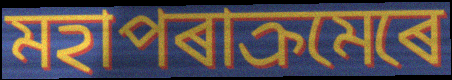
মহাপৰাক্ৰমেৰে